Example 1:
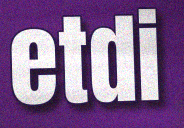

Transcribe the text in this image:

etdi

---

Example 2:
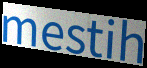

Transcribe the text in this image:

mestih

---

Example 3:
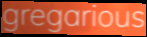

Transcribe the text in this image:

gregarious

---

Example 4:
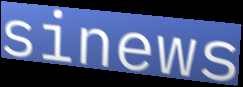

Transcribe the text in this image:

sinews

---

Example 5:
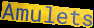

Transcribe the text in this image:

Amulets